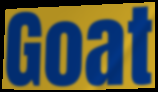
Goat